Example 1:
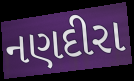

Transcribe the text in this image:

નણદીરા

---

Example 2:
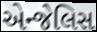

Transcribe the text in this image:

એન્જેલિસ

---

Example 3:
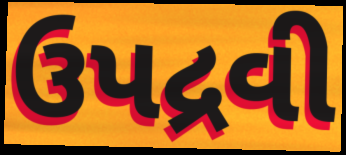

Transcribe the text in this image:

ઉપદ્રવી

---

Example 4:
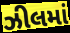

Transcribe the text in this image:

ઝીલમાં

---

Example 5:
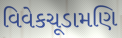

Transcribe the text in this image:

વિવેકચૂડામણિ